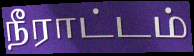
நீராட்டம்